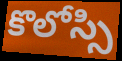
కొలోస్సి